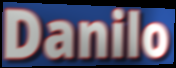
Danilo